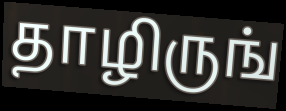
தாழிருங்